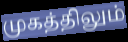
முகத்திலும்